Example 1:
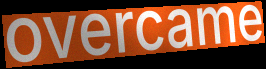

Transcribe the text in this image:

overcame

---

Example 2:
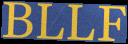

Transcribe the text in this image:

BLLF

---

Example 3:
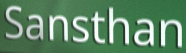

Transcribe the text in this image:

Sansthan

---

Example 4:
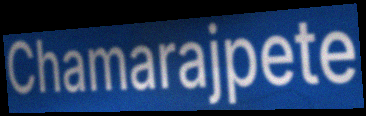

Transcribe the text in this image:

Chamarajpete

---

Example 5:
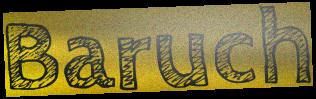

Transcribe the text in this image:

Baruch